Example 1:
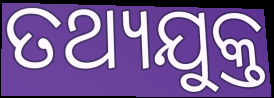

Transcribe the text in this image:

ତଥ୍ୟଯୁକ୍ତ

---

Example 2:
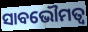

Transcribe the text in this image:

ସାବଭୌମତ୍ୱ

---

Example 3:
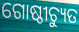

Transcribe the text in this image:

ଗୋଷ୍ଠୀଚ୍ୟୁତ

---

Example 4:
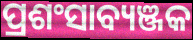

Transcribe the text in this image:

ପ୍ରଶଂସାବ୍ୟଞ୍ଜକ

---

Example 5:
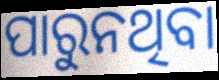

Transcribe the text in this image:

ପାରୁନଥିବା